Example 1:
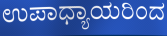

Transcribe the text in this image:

ಉಪಾಧ್ಯಾಯರಿಂದ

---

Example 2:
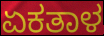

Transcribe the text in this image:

ಏಕತಾಳ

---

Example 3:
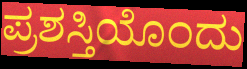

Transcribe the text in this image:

ಪ್ರಶಸ್ತಿಯೊಂದು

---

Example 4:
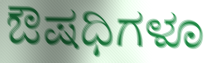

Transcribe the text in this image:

ಔಷಧಿಗಳೂ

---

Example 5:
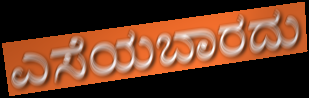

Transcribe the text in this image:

ಎಸೆಯಬಾರದು